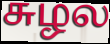
சுழல